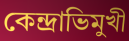
কেন্দ্রাভিমুখী